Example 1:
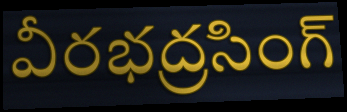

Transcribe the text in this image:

వీరభద్రసింగ్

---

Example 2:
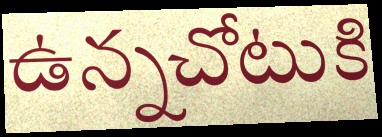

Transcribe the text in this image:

ఉన్నచోటుకి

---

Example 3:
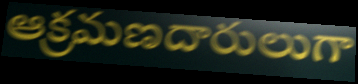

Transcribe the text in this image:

ఆక్రమణదారులుగా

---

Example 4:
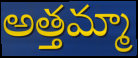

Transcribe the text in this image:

అత్తమ్మా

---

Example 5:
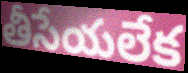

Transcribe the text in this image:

తీసేయలేక